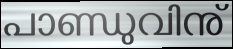
പാണ്ഡുവിനു്